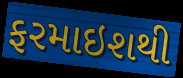
ફરમાઇશથી